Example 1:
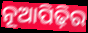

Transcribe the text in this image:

ନୂଆପିଢ଼ିର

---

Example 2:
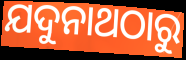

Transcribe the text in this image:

ଯଦୁନାଥଠାରୁ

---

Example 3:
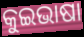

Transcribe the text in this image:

କୁଇଭାଷା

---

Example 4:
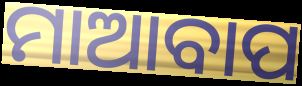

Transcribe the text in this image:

ମାଆବାପ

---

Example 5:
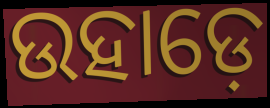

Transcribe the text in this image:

ଉହାଡ଼େ